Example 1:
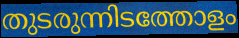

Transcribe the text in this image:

തുടരുന്നിടത്തോളം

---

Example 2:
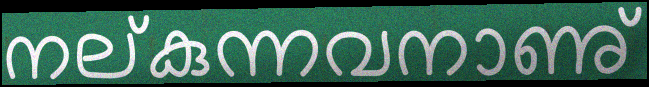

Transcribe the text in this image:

നല്കുന്നവനാണു്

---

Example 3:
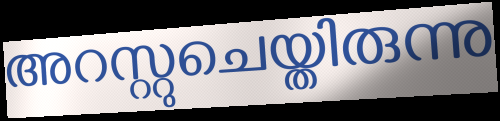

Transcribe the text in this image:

അറസ്റ്റുചെയ്തിരുന്നു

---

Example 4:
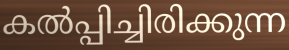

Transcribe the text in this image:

കൽപ്പിച്ചിരിക്കുന്ന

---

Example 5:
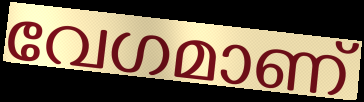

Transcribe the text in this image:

വേഗമാണ്